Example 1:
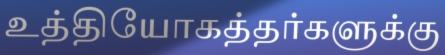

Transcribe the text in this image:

உத்தியோகத்தர்களுக்கு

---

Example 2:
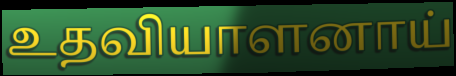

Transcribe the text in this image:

உதவியாளனாய்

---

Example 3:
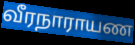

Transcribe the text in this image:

வீரநாராயண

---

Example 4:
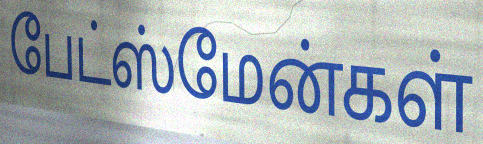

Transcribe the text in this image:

பேட்ஸ்மேன்கள்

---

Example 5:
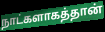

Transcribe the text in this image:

நாட்களாகத்தான்